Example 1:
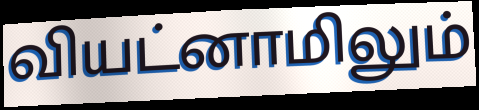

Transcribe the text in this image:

வியட்னாமிலும்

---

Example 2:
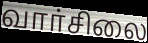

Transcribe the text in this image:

வார்சிலை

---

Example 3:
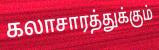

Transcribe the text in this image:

கலாசாரத்துக்கும்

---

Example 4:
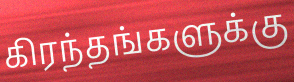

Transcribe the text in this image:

கிரந்தங்களுக்கு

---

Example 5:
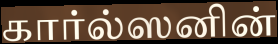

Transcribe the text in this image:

கார்ல்ஸனின்